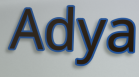
Adya